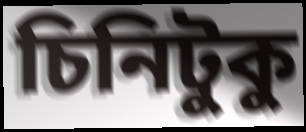
চিনিটুকু